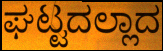
ಘಟ್ಟದಲ್ಲಾದ